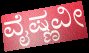
ವೈಷ್ಣವೀ